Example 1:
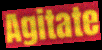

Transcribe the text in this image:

Agitate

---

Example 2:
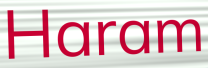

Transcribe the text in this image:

Haram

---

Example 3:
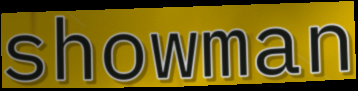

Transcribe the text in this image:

showman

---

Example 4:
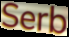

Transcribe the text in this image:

Serb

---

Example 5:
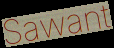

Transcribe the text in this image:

Sawant